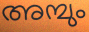
അമ്പും